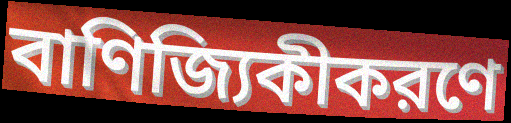
বাণিজ্যিকীকরণে